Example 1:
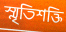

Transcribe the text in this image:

স্মৃতিশক্তি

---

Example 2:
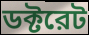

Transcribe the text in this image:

ডক্টরেট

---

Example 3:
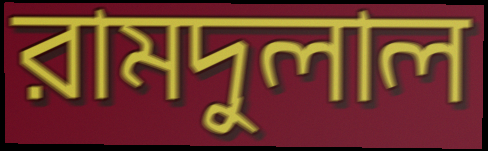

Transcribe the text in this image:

রামদুলাল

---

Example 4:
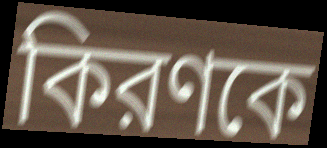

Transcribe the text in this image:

কিরণকে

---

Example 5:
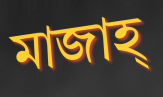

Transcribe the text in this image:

মাজাহ্